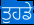
ਤੁਹਡੇ